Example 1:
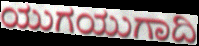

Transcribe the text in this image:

ಯುಗಯುಗಾದಿ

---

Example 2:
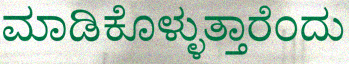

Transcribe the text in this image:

ಮಾಡಿಕೊಳ್ಳುತ್ತಾರೆಂದು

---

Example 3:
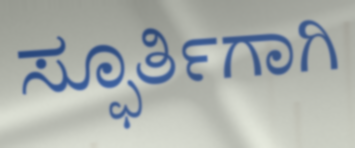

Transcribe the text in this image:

ಸ್ಫೂರ್ತಿಗಾಗಿ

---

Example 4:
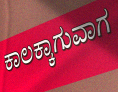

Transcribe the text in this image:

ಕಾಲಕ್ಕಾಗುವಾಗ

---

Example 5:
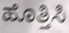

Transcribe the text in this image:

ಹೊತ್ತಿಸಿ